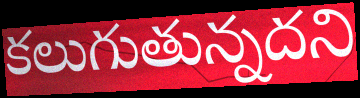
కలుగుతున్నదని